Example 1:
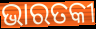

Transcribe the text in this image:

ଭାରତକୀ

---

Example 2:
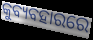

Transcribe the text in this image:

କୁବ୍ୟବହାରରେ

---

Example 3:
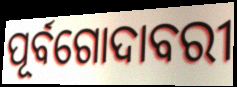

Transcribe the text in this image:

ପୂର୍ବଗୋଦାବରୀ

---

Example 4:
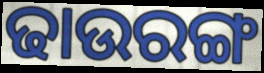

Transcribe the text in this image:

ଢାଉରଙ୍ଗ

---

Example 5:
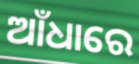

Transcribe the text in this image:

ଆଁଧାରେ